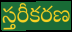
స్తరీకరణ